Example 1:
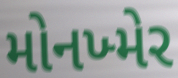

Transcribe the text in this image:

મોનખ્મેર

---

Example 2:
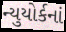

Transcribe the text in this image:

ન્યુયોર્કનાં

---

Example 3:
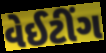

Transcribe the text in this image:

વેઈટીંગ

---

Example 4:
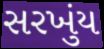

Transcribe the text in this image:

સરખુંય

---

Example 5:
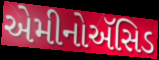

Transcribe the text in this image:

એમીનોઍસિડ